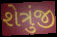
શેત્રુંજી